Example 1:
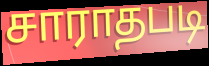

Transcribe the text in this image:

சாராதபடி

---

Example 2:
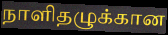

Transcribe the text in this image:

நாளிதழுக்கான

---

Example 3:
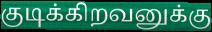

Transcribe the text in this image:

குடிக்கிறவனுக்கு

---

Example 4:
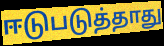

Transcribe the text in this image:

ஈடுபடுத்தாது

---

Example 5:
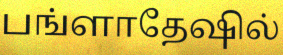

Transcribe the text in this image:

பங்ளாதேஷில்